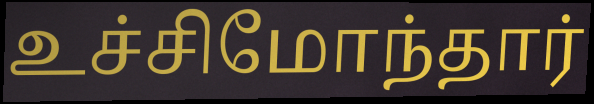
உச்சிமோந்தார்